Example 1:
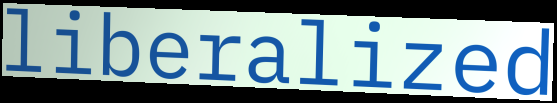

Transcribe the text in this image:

liberalized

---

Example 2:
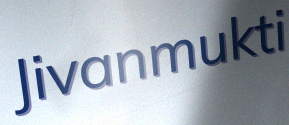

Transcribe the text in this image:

Jivanmukti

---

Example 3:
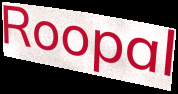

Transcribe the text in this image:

Roopal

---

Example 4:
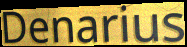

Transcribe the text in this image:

Denarius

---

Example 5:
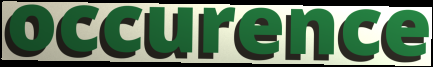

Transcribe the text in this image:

occurence